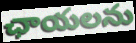
ఛాయలను